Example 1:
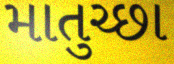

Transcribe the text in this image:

માતુચ્છા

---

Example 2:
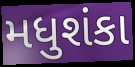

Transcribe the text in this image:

મધુશંકા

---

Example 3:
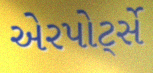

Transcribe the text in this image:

એરપોર્ટ્સે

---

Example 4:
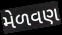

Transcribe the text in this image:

મેળવણ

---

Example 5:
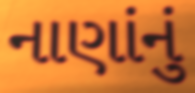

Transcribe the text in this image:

નાણાંનું